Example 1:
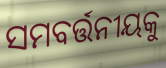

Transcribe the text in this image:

ସମବର୍ତ୍ତନୀୟକୁ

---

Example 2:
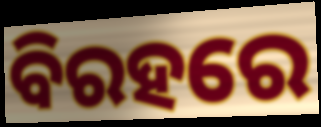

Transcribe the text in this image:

ବିରହରେ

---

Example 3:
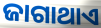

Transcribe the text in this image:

ଜାଗାଥାଏ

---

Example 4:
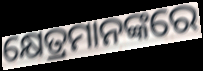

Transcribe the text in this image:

କ୍ଷେତ୍ରମାନଙ୍କରେ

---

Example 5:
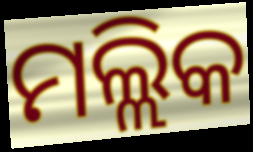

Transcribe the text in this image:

ମଲ୍ଲିକ